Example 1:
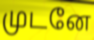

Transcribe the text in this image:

முடனே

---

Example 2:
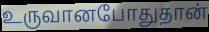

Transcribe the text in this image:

உருவானபோதுதான்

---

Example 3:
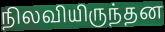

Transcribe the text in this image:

நிலவியிருந்தன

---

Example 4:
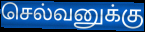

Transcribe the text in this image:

செல்வனுக்கு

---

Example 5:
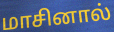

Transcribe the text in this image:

மாசினால்